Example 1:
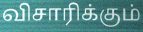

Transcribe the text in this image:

விசாரிக்கும்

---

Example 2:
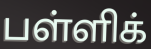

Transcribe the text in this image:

பள்ளிக்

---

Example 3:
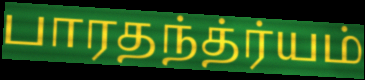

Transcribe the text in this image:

பாரதந்த்ர்யம்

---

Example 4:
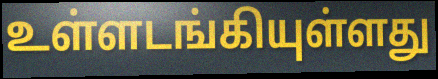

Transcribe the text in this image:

உள்ளடங்கியுள்ளது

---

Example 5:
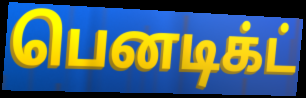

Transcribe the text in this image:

பெனடிக்ட்